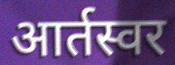
आर्तस्वर